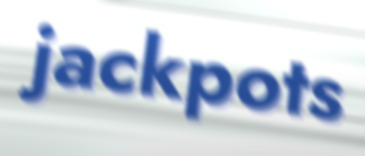
jackpots